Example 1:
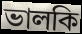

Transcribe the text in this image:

ভালকি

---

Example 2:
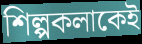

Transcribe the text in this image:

শিল্পকলাকেই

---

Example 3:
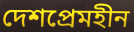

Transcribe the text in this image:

দেশপ্রেমহীন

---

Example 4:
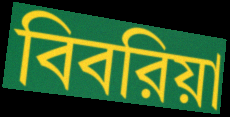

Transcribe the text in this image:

বিবরিয়া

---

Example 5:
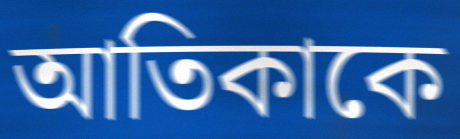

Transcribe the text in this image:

আতিকাকে